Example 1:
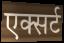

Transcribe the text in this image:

एक्सर्ट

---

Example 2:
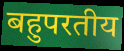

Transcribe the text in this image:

बहुपरतीय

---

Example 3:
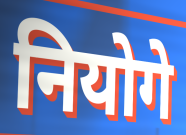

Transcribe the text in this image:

नियोगे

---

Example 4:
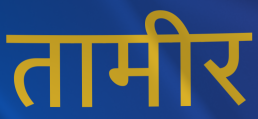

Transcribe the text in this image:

तामीर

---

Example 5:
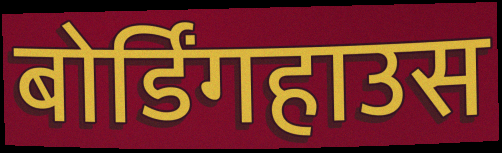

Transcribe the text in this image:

बोर्डिंगहाउस